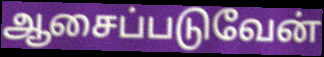
ஆசைப்படுவேன்